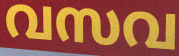
വസവ